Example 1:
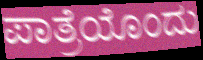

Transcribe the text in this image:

ಪಾತ್ರೆಯೊಂದು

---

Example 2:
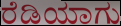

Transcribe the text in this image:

ರೆಡಿಯಾಗು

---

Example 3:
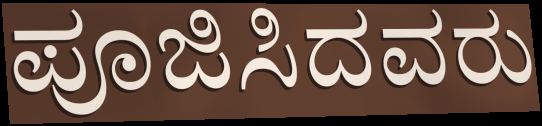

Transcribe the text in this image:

ಪೂಜಿಸಿದವರು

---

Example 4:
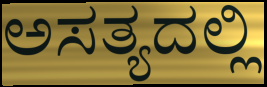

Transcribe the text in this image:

ಅಸತ್ಯದಲ್ಲಿ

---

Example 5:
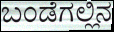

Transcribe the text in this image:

ಬಂಡೆಗಲ್ಲಿನ